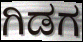
ಗಿಡಗ